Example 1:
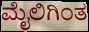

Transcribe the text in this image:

ಮೈಲಿಗಿಂತ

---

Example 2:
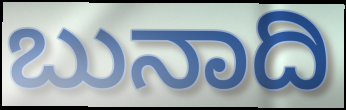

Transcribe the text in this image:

ಬುನಾದಿ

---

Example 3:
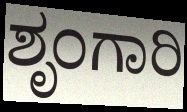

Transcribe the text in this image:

ಶೃಂಗಾರಿ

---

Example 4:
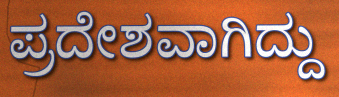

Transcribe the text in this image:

ಪ್ರದೇಶವಾಗಿದ್ದು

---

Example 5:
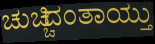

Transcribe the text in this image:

ಚುಚ್ಚಿದಂತಾಯ್ತು